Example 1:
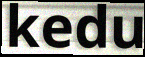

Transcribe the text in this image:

kedu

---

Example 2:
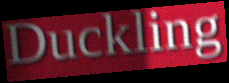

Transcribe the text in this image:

Duckling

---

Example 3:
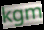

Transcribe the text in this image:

kgm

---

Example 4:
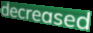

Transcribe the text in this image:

decreased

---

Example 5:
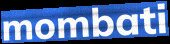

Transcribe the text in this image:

mombati